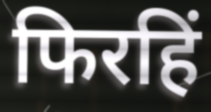
फिरहिं